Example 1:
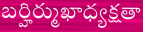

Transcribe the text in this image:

బర్హిర్ముఖాధ్యక్షతా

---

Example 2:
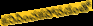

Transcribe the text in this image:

కనిపించకపోవడంతో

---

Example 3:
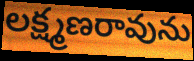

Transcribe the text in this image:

లక్ష్మణరావును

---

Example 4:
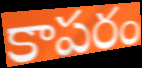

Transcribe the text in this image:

కాపరం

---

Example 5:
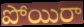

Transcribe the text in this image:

పోయిరా